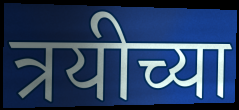
त्रयीच्या